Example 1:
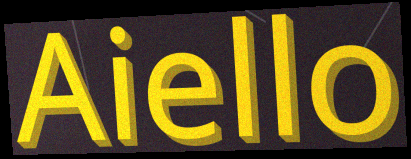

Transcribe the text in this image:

Aiello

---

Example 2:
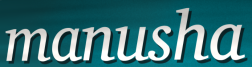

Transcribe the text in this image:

manusha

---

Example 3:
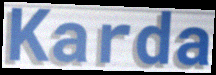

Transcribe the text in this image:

Karda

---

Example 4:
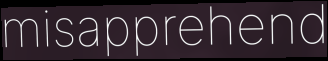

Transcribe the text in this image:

misapprehend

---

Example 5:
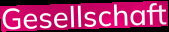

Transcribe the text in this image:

Gesellschaft